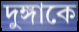
দুঙ্গাকে